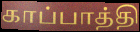
காப்பாத்தி